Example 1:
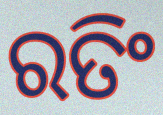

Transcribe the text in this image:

ରତିଂ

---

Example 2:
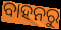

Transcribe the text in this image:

ବାହନରୁ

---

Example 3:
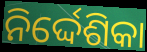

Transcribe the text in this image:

ନିର୍ଦ୍ଦେଶିକା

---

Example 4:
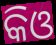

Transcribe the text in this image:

କିଓ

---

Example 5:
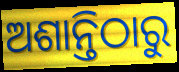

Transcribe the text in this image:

ଅଶାନ୍ତିଠାରୁ